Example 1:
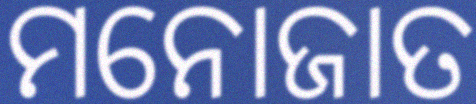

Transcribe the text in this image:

ମନୋଜାତ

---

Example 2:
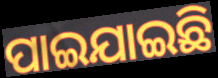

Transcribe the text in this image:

ପାଇଯାଇଛି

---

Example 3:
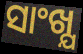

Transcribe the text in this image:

ସାଂଖ୍ଯ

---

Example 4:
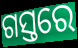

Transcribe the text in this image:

ଗସ୍ତରେ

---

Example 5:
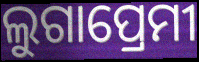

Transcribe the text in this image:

ଲୁଗାପ୍ରେମୀ